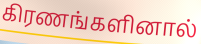
கிரணங்களினால்